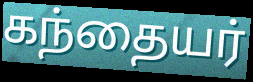
கந்தையர்